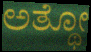
ಅತ್ಥೋ